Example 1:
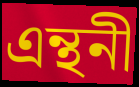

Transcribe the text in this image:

এন্থনী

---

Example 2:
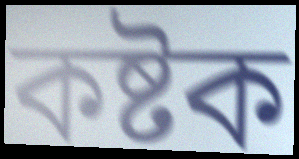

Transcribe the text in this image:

কষ্টক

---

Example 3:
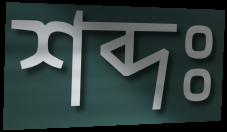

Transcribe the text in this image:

শব্দঃ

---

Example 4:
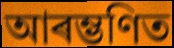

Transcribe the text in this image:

আৰম্ভণিত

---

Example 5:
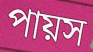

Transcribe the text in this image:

পায়স